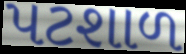
પટશાળ